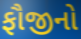
ફૌજીનો